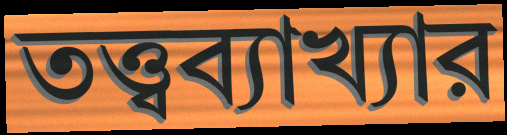
তত্ত্বব্যাখ্যার